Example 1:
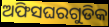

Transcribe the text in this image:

ଅଫିସଘରଗୁଡିକ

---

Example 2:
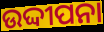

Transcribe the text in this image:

ଉଦ୍ଦୀପନା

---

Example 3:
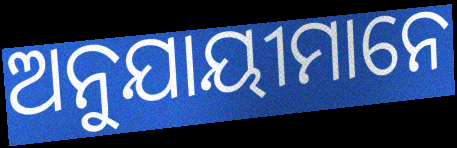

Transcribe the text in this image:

ଅନୁଯାୟୀମାନେ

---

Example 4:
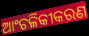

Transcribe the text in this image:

ଆଂଚଳିକୀକରଣ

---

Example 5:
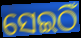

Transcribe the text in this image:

ସେଇଠିଁ